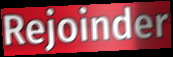
Rejoinder